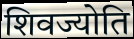
शिवज्योति